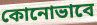
কোনোভাবে